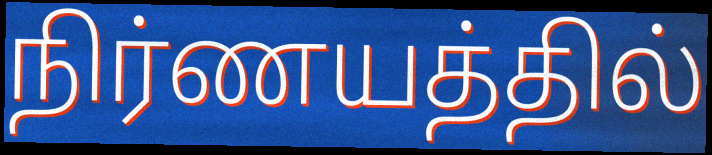
நிர்ணயத்தில்